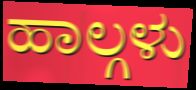
ಹಾಲ್ಗಳು